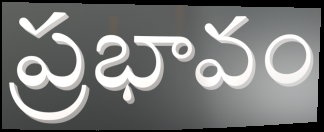
ప్రభావం